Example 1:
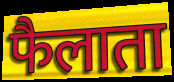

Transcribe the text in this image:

फैलाता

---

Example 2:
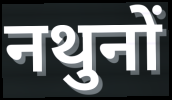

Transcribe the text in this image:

नथुनों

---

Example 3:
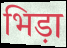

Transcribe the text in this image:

भिड़ा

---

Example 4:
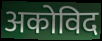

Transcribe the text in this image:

अकोविद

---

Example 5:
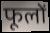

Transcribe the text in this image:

फूलों